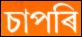
চাপৰি